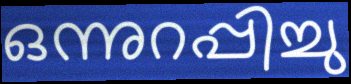
ഒന്നുറപ്പിച്ചു